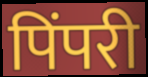
पिंपरी